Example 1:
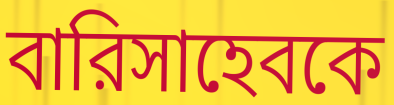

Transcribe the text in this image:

বারিসাহেবকে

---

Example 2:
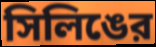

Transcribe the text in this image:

সিলিঙের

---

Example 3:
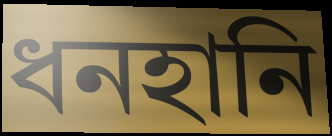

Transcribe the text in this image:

ধনহানি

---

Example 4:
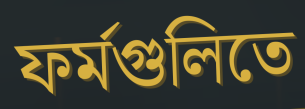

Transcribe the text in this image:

ফর্মগুলিতে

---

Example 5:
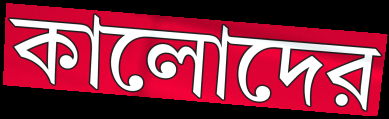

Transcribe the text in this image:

কালোদের